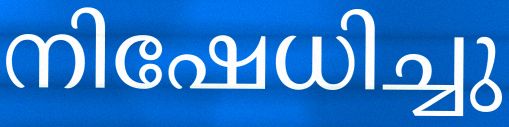
നിഷേധിച്ചു